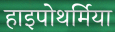
हाइपोथर्मिया